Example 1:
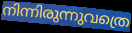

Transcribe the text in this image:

നിന്നിരുന്നുവത്രെ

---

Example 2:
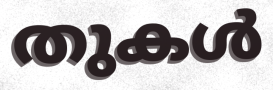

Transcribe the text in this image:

തുകൾ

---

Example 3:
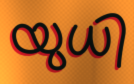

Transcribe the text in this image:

യുധി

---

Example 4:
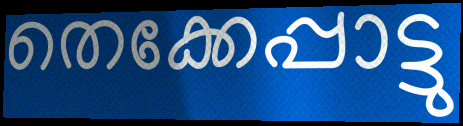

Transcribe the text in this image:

തെക്കേപ്പാട്ടു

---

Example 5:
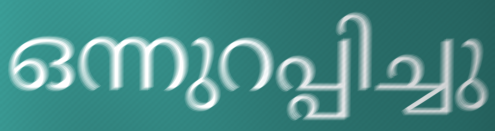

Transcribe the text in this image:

ഒന്നുറപ്പിച്ചു